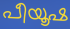
പീയൂഷ